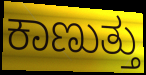
ಕಾಣುತ್ತು